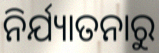
ନିର୍ଯ୍ୟାତନାରୁ